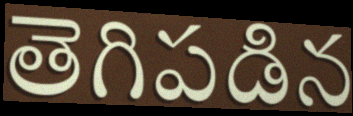
తెగిపడిన